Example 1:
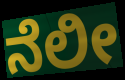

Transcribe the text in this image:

ನೆಲೀ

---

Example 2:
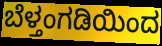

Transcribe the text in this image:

ಬೆಳ್ತಂಗಡಿಯಿಂದ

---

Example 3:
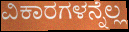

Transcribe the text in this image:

ವಿಕಾರಗಳನ್ನೆಲ್ಲ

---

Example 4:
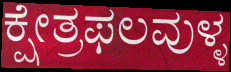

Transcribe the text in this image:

ಕ್ಷೇತ್ರಫಲವುಳ್ಳ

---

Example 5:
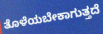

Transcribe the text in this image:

ತೊಳೆಯಬೇಕಾಗುತ್ತದೆ